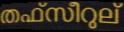
തഫ്സീറുല്